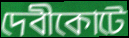
দেবীকোটে